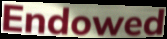
Endowed